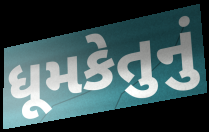
ધૂમકેતુનું